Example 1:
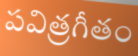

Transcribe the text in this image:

పవిత్రగీతం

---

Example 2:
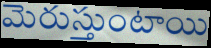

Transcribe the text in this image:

మెరుస్తుంటాయి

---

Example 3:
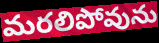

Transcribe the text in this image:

మరలిపోవును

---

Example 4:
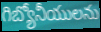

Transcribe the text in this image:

గిబ్యోనీయులను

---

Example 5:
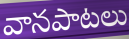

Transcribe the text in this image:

వానపాటలు